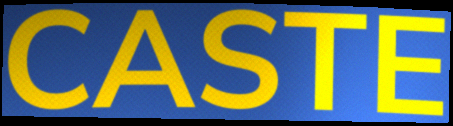
CASTE